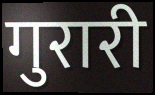
गुरारी